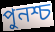
পুনশ্চ